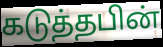
கடுத்தபின்